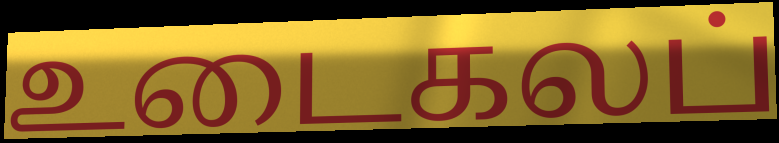
உடைகலப்